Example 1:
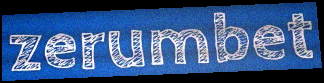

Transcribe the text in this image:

zerumbet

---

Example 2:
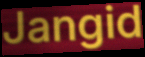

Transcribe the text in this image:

Jangid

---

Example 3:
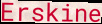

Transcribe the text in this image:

Erskine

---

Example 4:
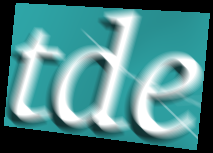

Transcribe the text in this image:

tde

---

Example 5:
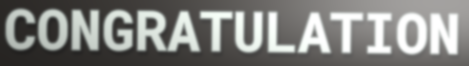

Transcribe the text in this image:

CONGRATULATION